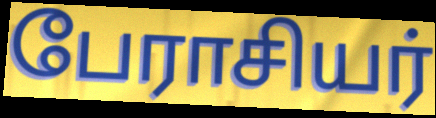
பேராசியர்